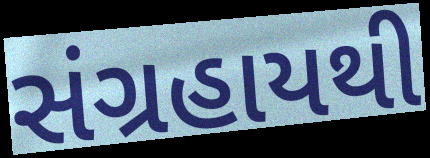
સંગ્રહાયથી